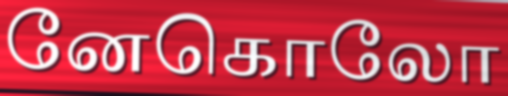
னேகொலோ